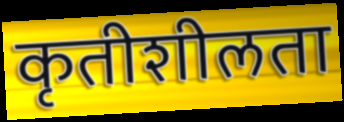
कृतीशीलता